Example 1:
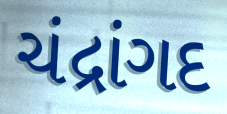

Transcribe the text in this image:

ચંદ્રાંગદ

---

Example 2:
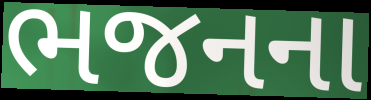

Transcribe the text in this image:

ભજનના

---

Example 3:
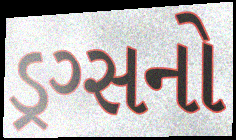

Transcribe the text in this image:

ડ્રગ્સનો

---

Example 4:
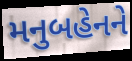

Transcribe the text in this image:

મનુબહેનને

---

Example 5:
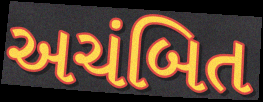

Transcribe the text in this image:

અચંબિત